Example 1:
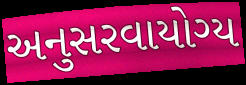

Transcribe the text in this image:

અનુસરવાયોગ્ય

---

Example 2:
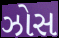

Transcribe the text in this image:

ઝોસ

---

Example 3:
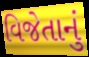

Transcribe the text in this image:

વિજેતાનું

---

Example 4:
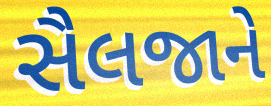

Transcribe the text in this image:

સૈલજાને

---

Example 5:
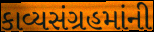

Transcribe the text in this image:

કાવ્યસંગ્રહમાંની